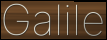
Galile